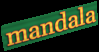
mandala